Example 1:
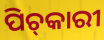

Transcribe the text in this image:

ପିଚ୍‌କାରୀ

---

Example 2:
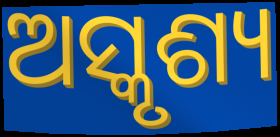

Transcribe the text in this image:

ଅସ୍କୃଶ୍ୟ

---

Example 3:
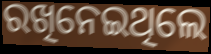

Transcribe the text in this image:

ରଖିନେଇଥିଲେ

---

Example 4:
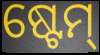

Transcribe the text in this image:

ଷ୍ଟେମ୍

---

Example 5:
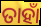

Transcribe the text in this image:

ତାହାଁ